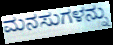
ಮನಸುಗಳನ್ನು